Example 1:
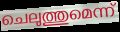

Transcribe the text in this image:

ചെലുത്തുമെന്ന്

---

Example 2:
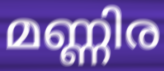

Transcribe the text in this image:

മണ്ണിര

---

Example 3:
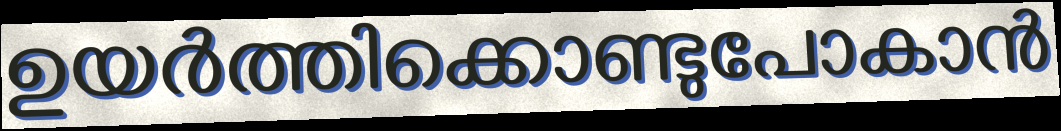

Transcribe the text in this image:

ഉയർത്തിക്കൊണ്ടുപോകാൻ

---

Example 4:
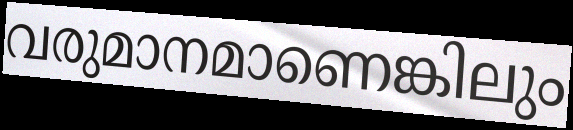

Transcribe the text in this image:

വരുമാനമാണെങ്കിലും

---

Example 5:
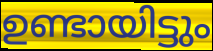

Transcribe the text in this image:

ഉണ്ടായിട്ടും